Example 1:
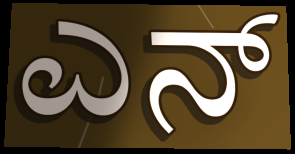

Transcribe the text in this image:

ಎನ್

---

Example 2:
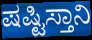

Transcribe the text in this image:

ಷಷ್ಟಿಸ್ತಾನಿ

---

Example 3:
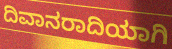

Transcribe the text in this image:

ದಿವಾನರಾದಿಯಾಗಿ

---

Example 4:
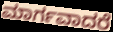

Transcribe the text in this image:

ಮಾರ್ಗವಾದರೆ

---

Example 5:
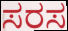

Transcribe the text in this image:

ಸರಸ